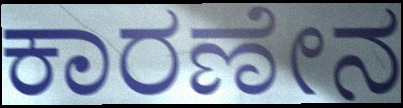
ಕಾರಣೇನ